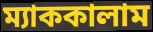
ম্যাককালাম